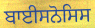
ਬਾਈਸਨੋਸਿਸ